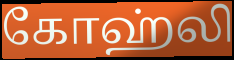
கோஹ்லி